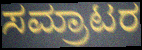
ಸಮ್ರಾಟರ